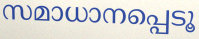
സമാധാനപ്പെടൂ